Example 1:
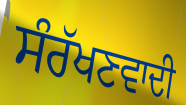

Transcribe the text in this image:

ਸੰਰੱਖਣਵਾਦੀ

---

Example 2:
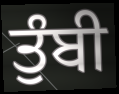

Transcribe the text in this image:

ਤੁੰਬੀ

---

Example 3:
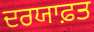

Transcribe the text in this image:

ਦਰਯਾਫ਼ਤ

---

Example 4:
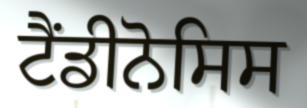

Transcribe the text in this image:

ਟੈਂਡੀਨੋਸਿਸ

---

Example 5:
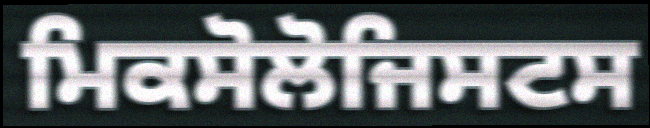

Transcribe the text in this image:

ਮਿਕਸੋਲੋਜਿਸਟਸ